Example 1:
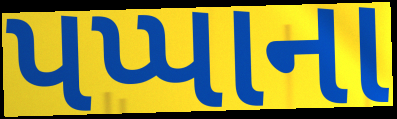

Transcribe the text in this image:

પપ્પાના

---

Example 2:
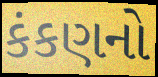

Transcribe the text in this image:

કંકણનો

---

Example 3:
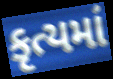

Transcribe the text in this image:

કૃત્યમાં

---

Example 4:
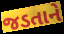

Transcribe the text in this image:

જડતાને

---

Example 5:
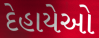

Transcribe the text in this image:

દેહાયેઓ